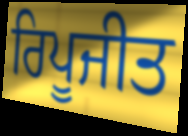
ਰਿਪੂਜੀਤ